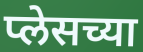
प्लेसच्या